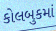
કોલબુકમાં